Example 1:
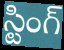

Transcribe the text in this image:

స్టింగ్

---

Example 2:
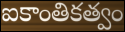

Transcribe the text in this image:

ఐకాంతికత్వం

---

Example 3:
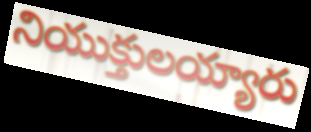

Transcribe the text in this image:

నియుక్తులయ్యారు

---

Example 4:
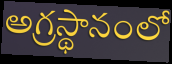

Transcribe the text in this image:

అగ్రస్థానంలో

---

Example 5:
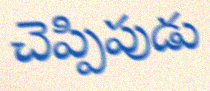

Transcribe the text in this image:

చెప్పిపుడు